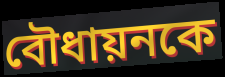
বৌধায়নকে